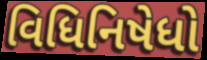
વિધિનિષેધો